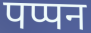
पप्पन